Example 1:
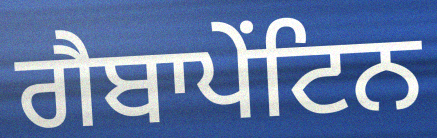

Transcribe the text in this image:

ਗੈਬਾਪੇਂਟਿਨ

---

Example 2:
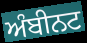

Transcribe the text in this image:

ਅੰਬੀਨਟ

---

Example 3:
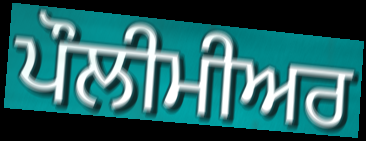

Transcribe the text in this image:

ਪੌਲੀਮੀਅਰ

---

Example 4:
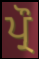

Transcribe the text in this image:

ਪ੍ਰੌ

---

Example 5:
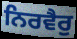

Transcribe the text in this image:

ਨਿਰਵੈਰੁ